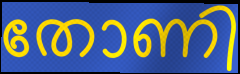
തോണി